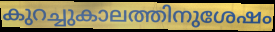
കുറച്ചുകാലത്തിനുശേഷം